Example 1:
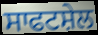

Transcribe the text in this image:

ਸਾਫਟਸ਼ੇਲ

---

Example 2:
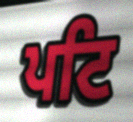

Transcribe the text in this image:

ਪਟਿ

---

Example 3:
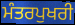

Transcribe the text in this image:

ਮੰਤਰਪੁਖਰੀ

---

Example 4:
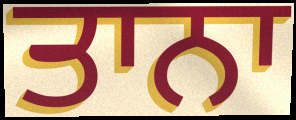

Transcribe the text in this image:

ਤਾਨਾ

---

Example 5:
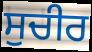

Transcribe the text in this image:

ਸੁਚੀਰ